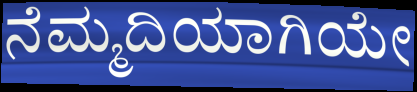
ನೆಮ್ಮದಿಯಾಗಿಯೇ